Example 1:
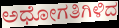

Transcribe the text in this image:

ಅಧೋಗತಿಗಿಳಿದ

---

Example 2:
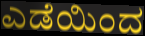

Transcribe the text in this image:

ಎಡೆಯಿಂದ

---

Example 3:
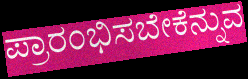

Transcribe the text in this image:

ಪ್ರಾರಂಭಿಸಬೇಕೆನ್ನುವ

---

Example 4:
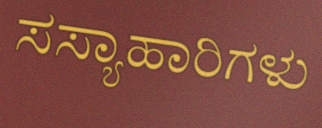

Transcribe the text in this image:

ಸಸ್ಯಾಹಾರಿಗಳು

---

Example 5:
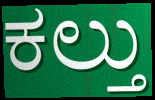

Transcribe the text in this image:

ಕಲ್ತು